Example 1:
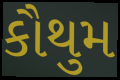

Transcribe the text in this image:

કૌથુમ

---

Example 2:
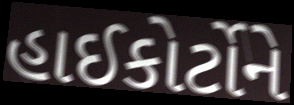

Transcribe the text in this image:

હાઈકોર્ટોને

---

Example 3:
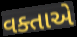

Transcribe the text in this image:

વક્તાએ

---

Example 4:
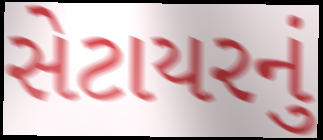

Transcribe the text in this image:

સેટાયરનું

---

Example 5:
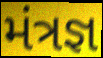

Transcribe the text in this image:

મંત્રજ્ઞ